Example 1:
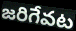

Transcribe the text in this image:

జరిగేవట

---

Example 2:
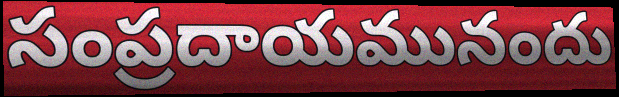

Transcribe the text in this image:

సంప్రదాయమునందు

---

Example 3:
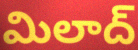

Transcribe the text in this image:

మిలాద్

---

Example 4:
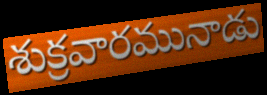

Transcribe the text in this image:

శుక్రవారమునాడు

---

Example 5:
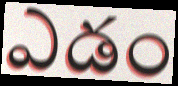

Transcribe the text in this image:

ఎడం